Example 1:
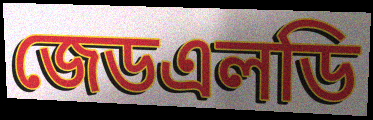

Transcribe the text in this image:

জেডএলডি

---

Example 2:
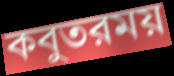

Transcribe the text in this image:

কবুতরময়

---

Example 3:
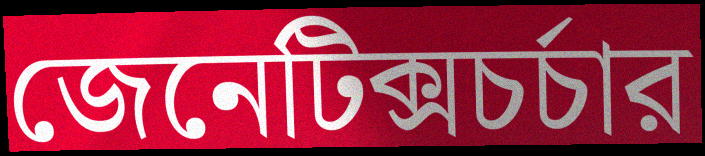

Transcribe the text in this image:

জেনেটিক্সচর্চার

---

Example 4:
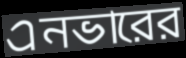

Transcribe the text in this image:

এনভারের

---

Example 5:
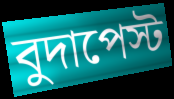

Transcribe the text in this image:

বুদাপেস্ট